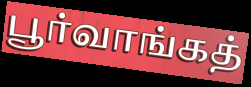
பூர்வாங்கத்